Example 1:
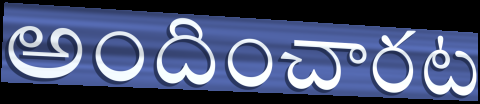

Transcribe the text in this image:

అందించారట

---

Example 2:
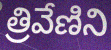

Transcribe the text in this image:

త్రివేణిని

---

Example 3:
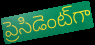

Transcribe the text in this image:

ప్రెసిడెంట్‌గా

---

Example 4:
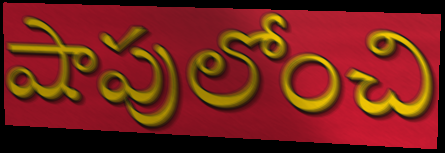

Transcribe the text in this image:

షాపులోంచి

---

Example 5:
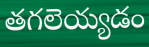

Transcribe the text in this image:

తగలెయ్యడం